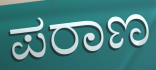
ಪರಾಣ